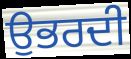
ਉਭਰਦੀ